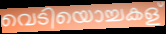
വെടിയൊച്ചകള്